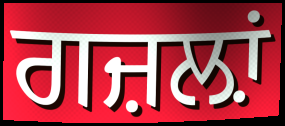
ਗਜ਼ਲ਼ਾਂ